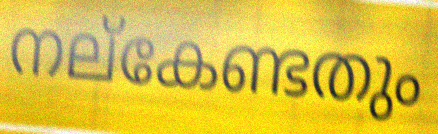
നല്കേണ്ടതും